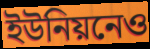
ইউনিয়নেও